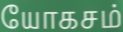
யோகசம்